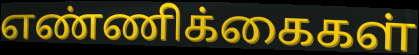
எண்ணிக்கைகள்